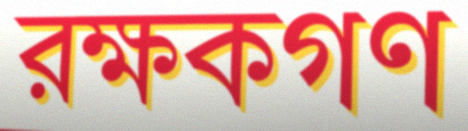
রক্ষকগণ